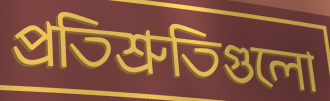
প্রতিশ্রুতিগুলো